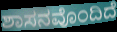
ಶಾಸನವೊಂದಿದೆ